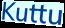
Kuttu